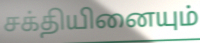
சக்தியினையும்